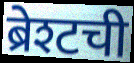
ब्रेश्टची